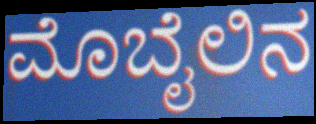
ಮೊಬೈಲಿನ